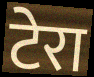
टेरा